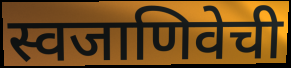
स्वजाणिवेची